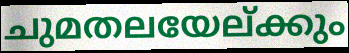
ചുമതലയേല്ക്കും